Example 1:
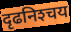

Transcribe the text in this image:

दृढनिश्‍चय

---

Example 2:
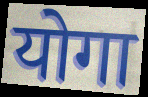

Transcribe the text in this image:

योगा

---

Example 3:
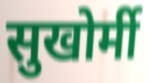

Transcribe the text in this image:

सुखोर्मी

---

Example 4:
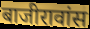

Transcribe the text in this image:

बाजीरावांस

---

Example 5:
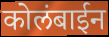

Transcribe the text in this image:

कोलंबाईन